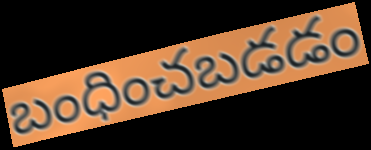
బంధించబడడం